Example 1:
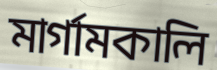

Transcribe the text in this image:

মাৰ্গামকালি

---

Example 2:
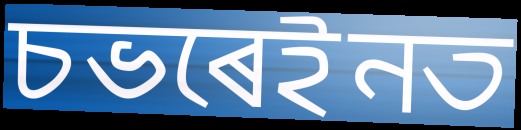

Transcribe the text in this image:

চভৰেইনত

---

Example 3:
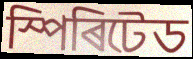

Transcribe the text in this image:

স্পিৰিটেড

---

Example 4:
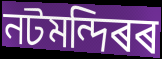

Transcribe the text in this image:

নটমন্দিৰৰ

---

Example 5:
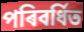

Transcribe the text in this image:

পৰিবৰ্ধিত